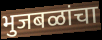
भुजबळांचा